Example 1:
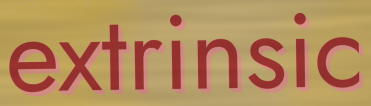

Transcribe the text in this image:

extrinsic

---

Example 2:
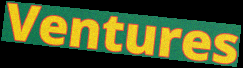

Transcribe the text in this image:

Ventures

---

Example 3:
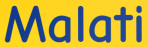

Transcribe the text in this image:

Malati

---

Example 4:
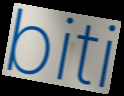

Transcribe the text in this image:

biti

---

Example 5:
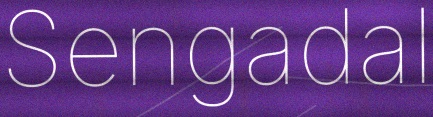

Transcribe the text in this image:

Sengadal